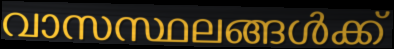
വാസസ്ഥലങ്ങൾക്ക്